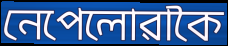
নেপেলোৱাকৈ